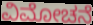
ವಿಮೋಚನೆ